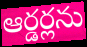
ఆర్డర్లను